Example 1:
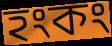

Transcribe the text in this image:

হংকং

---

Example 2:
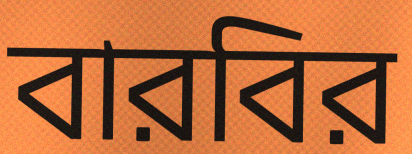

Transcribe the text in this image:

বারবির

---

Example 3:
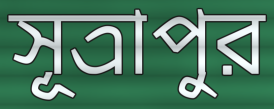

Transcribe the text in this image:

সূত্রাপুর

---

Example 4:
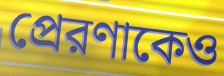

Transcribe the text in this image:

প্রেরণাকেও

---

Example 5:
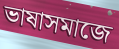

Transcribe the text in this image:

ভাষাসমাজে